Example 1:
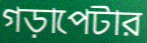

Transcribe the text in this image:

গড়াপেটার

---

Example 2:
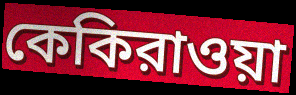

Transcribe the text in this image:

কেকিরাওয়া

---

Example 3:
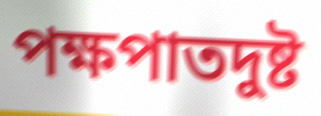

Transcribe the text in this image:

পক্ষপাতদুষ্ট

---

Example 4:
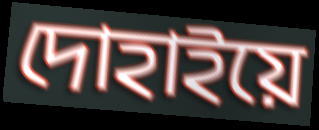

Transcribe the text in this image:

দোহাইয়ে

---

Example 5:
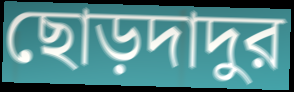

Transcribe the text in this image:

ছোড়দাদুর